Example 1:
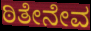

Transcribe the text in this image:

ಠಿತೇನೇವ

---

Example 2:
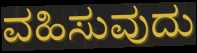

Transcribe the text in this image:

ವಹಿಸುವುದು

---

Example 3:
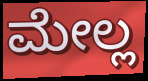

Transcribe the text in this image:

ಮೇಲ್ಲ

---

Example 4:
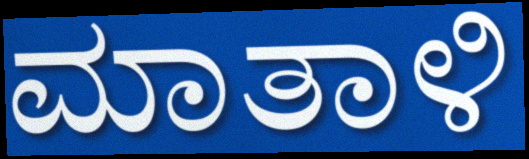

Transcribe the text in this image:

ಮಾತಾಳಿ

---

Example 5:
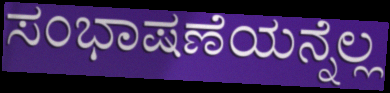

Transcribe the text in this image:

ಸಂಭಾಷಣೆಯನ್ನೆಲ್ಲ